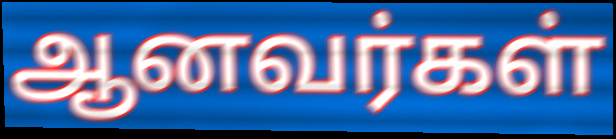
ஆனவர்கள்